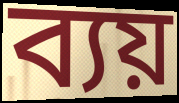
ব্যয়